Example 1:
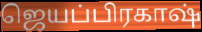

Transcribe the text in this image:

ஜெயப்பிரகாஷ்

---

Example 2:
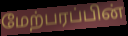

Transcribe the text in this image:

மேற்பரப்பின்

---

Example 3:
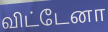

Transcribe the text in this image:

விட்டேனா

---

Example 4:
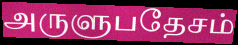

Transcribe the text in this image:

அருளுபதேசம்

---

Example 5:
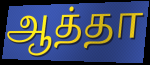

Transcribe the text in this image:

ஆத்தா